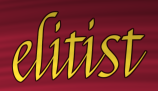
elitist